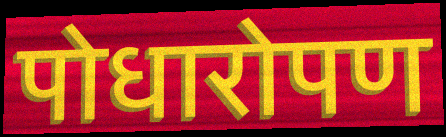
पोधारोपण